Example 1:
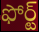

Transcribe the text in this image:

ఫోర్ట్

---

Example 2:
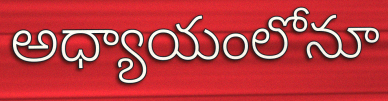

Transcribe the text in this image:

అధ్యాయంలోనూ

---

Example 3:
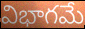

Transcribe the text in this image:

విభాగమే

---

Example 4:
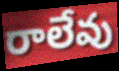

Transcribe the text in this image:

రాలేవు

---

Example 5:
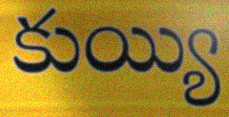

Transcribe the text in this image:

కుయ్యి